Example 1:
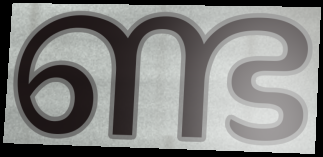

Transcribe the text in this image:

ണ്ട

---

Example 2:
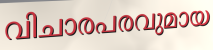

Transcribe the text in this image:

വിചാരപരവുമായ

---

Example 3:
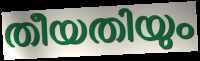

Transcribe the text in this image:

തീയതിയും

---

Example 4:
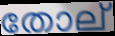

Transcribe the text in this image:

തോല്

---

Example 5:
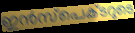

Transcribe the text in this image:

ഇൻസ്പെക്ടറുടെ